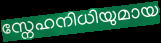
സ്നേഹനിധിയുമായ